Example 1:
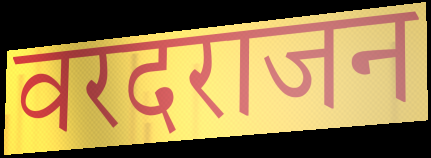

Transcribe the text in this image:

वरदराजन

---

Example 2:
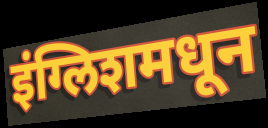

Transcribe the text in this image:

इंग्लिशमधून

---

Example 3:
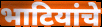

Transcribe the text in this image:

भाटियांचे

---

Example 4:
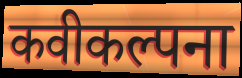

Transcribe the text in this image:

कवीकल्पना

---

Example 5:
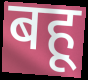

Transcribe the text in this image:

बहू